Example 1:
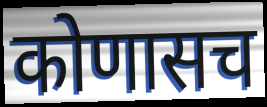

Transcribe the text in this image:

कोणासच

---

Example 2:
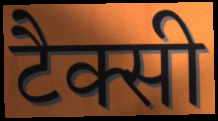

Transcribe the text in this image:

टैक्सी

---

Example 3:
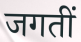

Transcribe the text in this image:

जगतीं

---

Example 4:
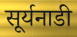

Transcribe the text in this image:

सूर्यनाडी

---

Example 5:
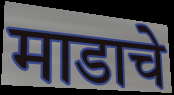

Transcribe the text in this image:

माडाचे